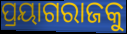
ପ୍ରୟାଗରାଜକୁ